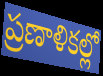
ప్రణాళికల్లో